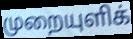
முறையுளிக்